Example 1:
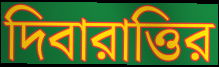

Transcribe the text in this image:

দিবারাত্তির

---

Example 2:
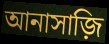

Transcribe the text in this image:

আনাসাজ়ি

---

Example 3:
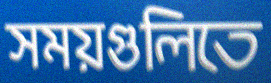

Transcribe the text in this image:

সময়গুলিতে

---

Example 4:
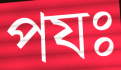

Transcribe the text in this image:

পযঃ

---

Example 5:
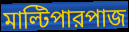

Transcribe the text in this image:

মাল্টিপারপাজ